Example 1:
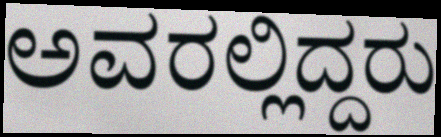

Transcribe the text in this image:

ಅವರಲ್ಲಿದ್ದರು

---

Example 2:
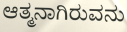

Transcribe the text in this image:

ಆತ್ಮನಾಗಿರುವನು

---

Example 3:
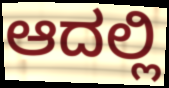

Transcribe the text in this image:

ಆದಲ್ಲಿ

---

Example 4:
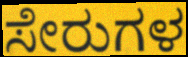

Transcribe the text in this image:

ಸೇರುಗಳ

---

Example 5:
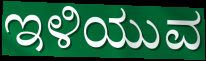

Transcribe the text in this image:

ಇಳಿಯುವ